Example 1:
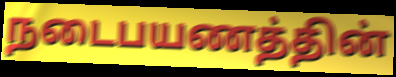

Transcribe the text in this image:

நடைபயணத்தின்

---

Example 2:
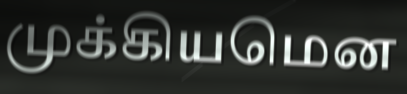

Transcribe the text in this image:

முக்கியமென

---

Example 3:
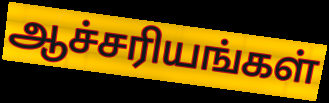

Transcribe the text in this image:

ஆச்சரியங்கள்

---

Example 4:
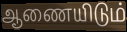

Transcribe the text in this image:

ஆணையிடும்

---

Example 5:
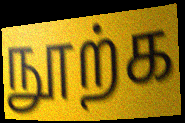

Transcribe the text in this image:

நூற்க